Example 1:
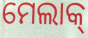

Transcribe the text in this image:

ମେଲାକ୍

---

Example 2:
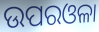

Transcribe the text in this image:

ଉପରଓଳା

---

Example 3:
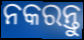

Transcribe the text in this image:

ନକରନ୍ତୁ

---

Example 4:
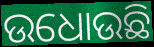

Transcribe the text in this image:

ଉଧୋଉଛି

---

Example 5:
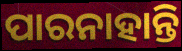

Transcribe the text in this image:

ପାରନାହାନ୍ତି